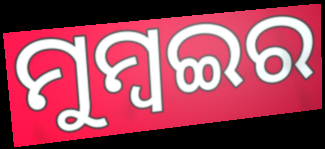
ମୁମ୍ବଇର